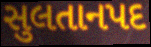
સુલતાનપદ